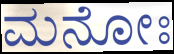
ಮನೋಃ